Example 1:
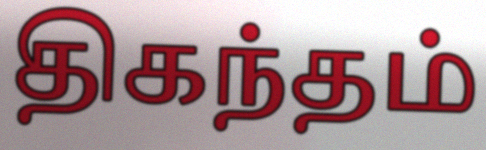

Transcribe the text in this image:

திகந்தம்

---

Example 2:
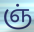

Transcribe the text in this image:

ஞ்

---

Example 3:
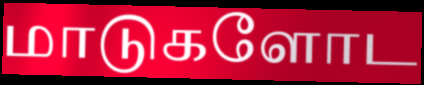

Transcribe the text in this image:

மாடுகளோட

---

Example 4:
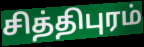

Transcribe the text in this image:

சித்திபுரம்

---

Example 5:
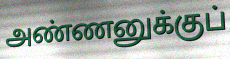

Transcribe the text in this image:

அண்ணனுக்குப்